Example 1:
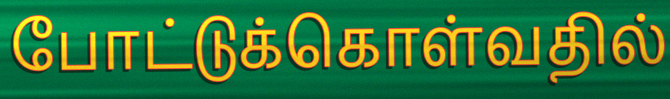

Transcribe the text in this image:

போட்டுக்கொள்வதில்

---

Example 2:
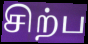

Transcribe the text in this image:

சிற்ப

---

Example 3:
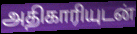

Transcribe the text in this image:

அதிகாரியுடன்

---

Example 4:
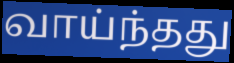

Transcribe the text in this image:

வாய்ந்தது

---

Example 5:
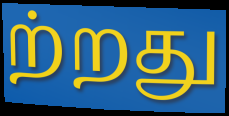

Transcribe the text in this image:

ற்றது